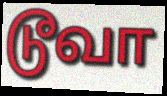
டூவா